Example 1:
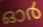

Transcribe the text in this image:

ഓർ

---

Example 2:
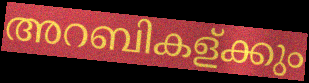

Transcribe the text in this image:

അറബികള്ക്കും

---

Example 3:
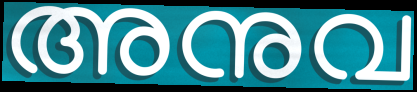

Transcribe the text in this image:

അനുവ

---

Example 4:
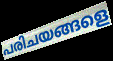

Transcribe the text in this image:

പരിചയങ്ങളെ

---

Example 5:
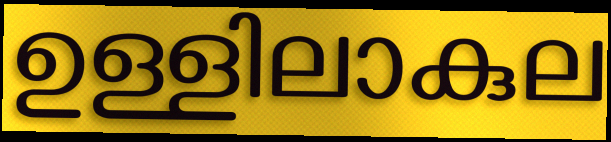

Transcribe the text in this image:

ഉള്ളിലാകുല